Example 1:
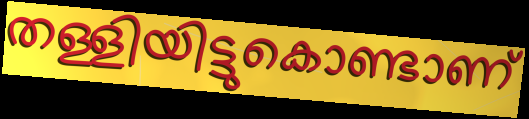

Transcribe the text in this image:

തള്ളിയിട്ടുകൊണ്ടാണ്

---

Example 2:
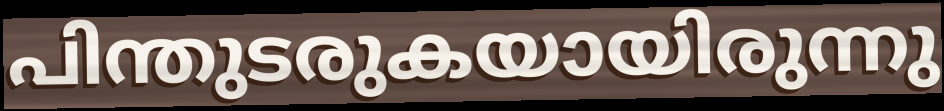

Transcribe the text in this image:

പിന്തുടരുകയായിരുന്നു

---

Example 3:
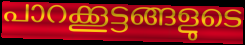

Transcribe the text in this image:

പാറക്കൂട്ടങ്ങളുടെ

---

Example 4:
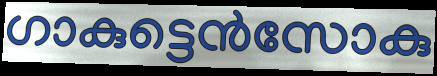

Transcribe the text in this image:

ഗാകുട്ടെൻസോകു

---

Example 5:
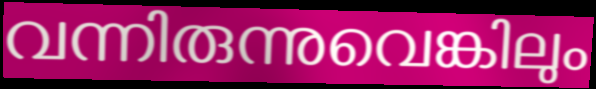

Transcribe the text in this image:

വന്നിരുന്നുവെങ്കിലും